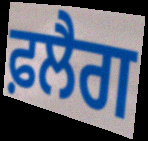
ਫ਼ਲੈਗ